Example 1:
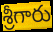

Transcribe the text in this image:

శ్రీగారు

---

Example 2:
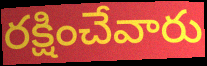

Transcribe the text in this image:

రక్షించేవారు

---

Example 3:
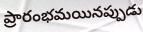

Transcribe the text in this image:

ప్రారంభమయినప్పుడు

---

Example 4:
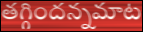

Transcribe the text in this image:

తగ్గిందన్నమాట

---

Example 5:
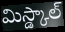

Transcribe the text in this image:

మిస్డ్కాల్